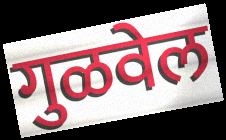
गुळवेल